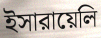
ইসারায়েলি